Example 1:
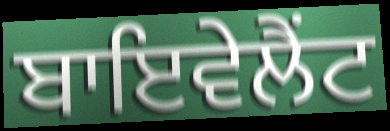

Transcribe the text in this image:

ਬਾਇਵੇਲੈਂਟ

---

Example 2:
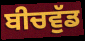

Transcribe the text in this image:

ਬੀਚਵੁੱਡ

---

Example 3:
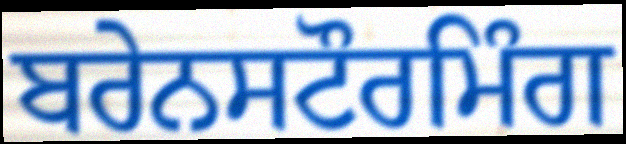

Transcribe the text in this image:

ਬਰੇਨਸਟੌਰਮਿੰਗ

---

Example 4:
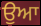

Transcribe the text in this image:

ਉਆ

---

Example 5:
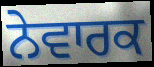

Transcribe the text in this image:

ਨੇਵਾਰਕ